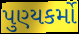
પુણ્યકર્મો